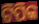
ଟିପିକ